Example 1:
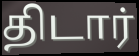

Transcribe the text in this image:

திடார்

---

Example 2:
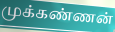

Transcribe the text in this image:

முக்கண்ணன்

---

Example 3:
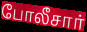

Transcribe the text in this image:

போலீசார்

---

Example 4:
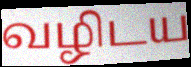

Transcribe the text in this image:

வழிடய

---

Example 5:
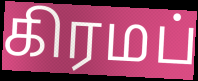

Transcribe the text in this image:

கிரமப்